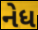
નેધ